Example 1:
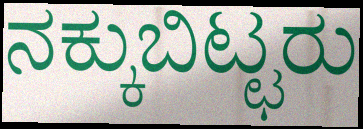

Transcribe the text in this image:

ನಕ್ಕುಬಿಟ್ಟರು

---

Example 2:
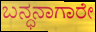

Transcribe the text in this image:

ಬನ್ಧನಾಗಾರೇ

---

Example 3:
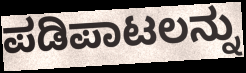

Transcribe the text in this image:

ಪಡಿಪಾಟಲನ್ನು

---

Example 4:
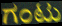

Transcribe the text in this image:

ಗಂಟು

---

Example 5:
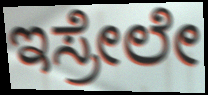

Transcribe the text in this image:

ಇಸ್ರೇಲೇ